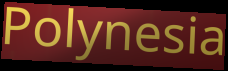
Polynesia